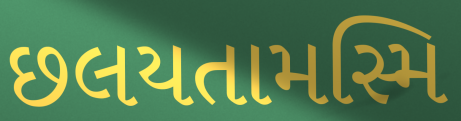
છલયતામસ્મિ